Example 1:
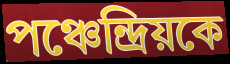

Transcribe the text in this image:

পঞ্চেন্দ্রিয়কে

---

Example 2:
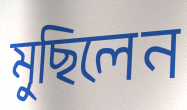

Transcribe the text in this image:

মুছিলেন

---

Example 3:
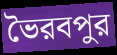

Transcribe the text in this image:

ভৈরবপুর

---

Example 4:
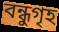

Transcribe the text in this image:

বন্ধুগৃহ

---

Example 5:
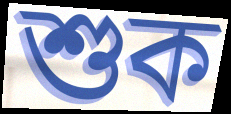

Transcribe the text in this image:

শুক